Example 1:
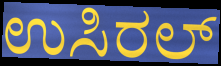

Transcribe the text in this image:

ಉಸಿರಲ್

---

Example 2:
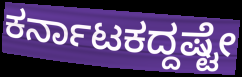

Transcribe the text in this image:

ಕರ್ನಾಟಕದ್ದಷ್ಟೇ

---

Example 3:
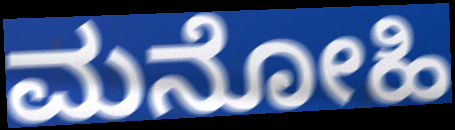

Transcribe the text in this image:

ಮನೋಹಿ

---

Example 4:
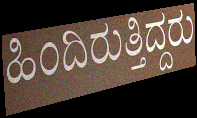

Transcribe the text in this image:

ಹಿಂದಿರುತ್ತಿದ್ದರು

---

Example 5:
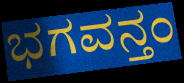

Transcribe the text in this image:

ಭಗವನ್ತಂ